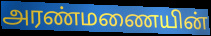
அரண்மணையின்